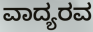
ವಾದ್ಯರವ